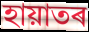
হায়াতৰ